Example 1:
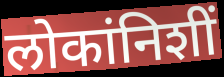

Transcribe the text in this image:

लोकांनिशीं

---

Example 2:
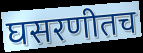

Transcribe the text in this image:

घसरणीतच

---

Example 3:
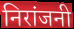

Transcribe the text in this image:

निरांजनी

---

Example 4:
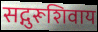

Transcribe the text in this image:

सद्गुरूशिवाय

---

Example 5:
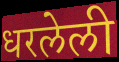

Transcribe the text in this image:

धरलेली